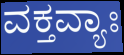
ವಕ್ತವ್ಯಾಃ